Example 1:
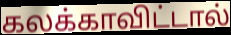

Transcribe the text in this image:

கலக்காவிட்டால்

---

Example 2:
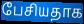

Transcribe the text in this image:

பேசியதாக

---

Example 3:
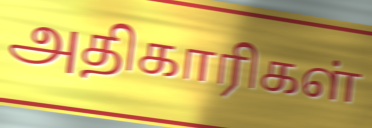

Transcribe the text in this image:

அதிகாரிகள்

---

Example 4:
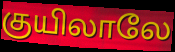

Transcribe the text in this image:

குயிலாலே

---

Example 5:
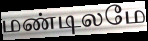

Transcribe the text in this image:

மண்டிலமே